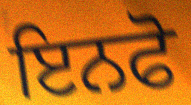
ਇਨਫੋ